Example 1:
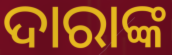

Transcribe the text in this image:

ଦାରାଙ୍କ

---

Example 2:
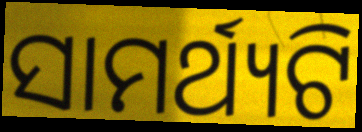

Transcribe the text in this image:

ସାମର୍ଥ୍ୟଟି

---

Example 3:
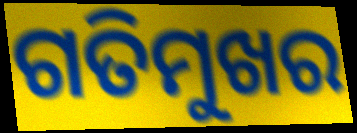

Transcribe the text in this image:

ଗତିମୁଖର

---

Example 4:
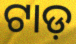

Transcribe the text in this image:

ଟାଡ଼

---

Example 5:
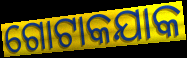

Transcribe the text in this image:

ଗୋଟାକଯାକ